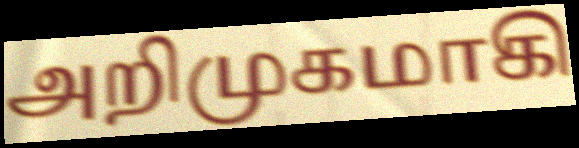
அறிமுகமாகி